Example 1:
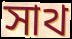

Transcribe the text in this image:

সাথ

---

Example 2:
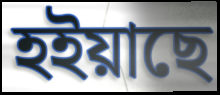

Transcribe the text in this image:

হইয়াছে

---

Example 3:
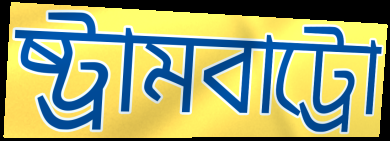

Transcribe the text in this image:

ষ্ট্ৰামবাট্ৰো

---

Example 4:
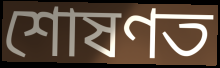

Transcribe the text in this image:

শোষণত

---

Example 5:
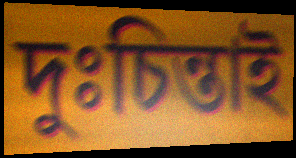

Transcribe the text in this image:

দুঃচিন্তাই